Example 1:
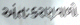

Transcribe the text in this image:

અંતઃકરણવાળો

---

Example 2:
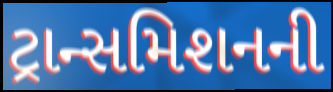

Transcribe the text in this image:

ટ્રાન્સમિશનની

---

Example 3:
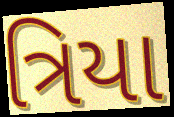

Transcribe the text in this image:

ત્રિયા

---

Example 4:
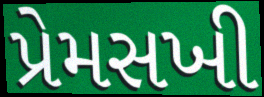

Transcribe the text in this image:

પ્રેમસખી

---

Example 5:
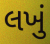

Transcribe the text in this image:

લખું